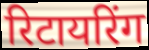
रिटायरिंग